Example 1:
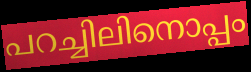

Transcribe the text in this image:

പറച്ചിലിനൊപ്പം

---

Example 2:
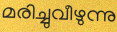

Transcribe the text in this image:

മരിച്ചുവീഴുന്നു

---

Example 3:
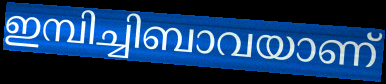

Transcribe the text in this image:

ഇമ്പിച്ചിബാവയാണ്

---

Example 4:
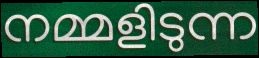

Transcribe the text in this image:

നമ്മളിടുന്ന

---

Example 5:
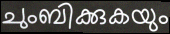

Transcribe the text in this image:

ചുംബിക്കുകയും